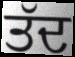
ਤੱਦ